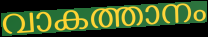
വാകത്താനം